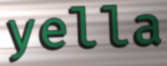
yella